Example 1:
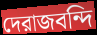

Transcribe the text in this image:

দেরাজবন্দি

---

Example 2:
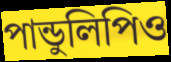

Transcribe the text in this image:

পান্ডুলিপিও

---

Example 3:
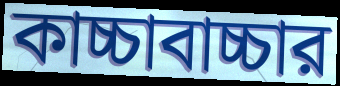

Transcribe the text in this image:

কাচ্চাবাচ্চার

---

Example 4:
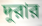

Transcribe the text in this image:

দুরার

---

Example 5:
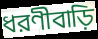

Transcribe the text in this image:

ধরণীবাড়ি